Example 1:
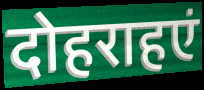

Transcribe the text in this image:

दोहराहएं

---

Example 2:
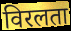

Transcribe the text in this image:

विरलता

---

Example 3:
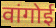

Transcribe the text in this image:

वांगोई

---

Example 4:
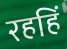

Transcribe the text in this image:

रहहिं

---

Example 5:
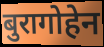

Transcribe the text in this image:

बुरागोहेन